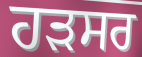
ਹੜਸਰ